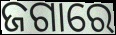
ଜଗାରେ